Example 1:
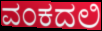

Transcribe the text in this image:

ವಂಕದಲಿ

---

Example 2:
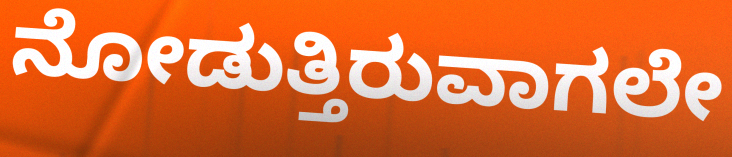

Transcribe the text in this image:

ನೋಡುತ್ತಿರುವಾಗಲೇ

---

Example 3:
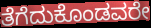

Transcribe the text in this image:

ತೆಗೆದುಕೊಂಡವರೇ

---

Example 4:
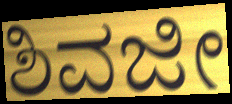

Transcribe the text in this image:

ಶಿವಜೀ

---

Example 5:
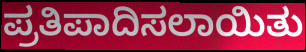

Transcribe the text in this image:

ಪ್ರತಿಪಾದಿಸಲಾಯಿತು